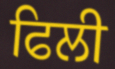
ਫਿਲੀ